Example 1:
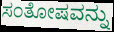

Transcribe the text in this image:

ಸಂತೋಷವನ್ನು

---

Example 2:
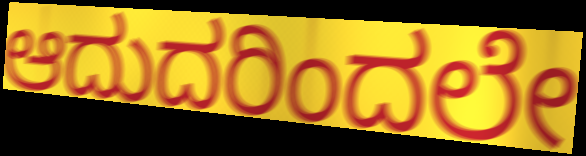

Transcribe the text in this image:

ಆದುದರಿಂದಲೇ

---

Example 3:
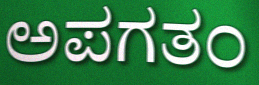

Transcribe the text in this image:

ಅಪಗತಂ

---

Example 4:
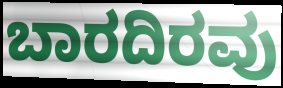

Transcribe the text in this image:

ಬಾರದಿರವು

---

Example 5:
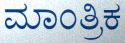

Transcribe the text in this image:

ಮಾಂತ್ರಿಕ